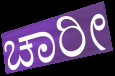
ಚಾರೀ